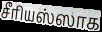
சீரியஸ்ஸாக